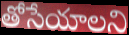
తోసేయాలని